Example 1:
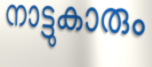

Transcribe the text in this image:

നാട്ടുകാരും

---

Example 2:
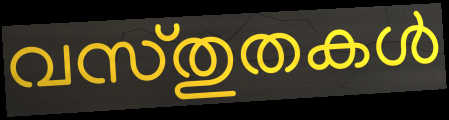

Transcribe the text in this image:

വസ്തുതകൾ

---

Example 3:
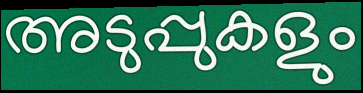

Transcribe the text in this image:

അടുപ്പുകളും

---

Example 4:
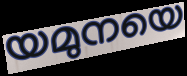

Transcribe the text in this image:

യമുനയെ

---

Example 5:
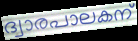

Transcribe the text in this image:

ദ്വാരപാലകന്